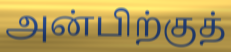
அன்பிற்குத்